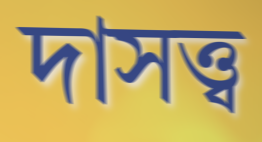
দাসত্ত্ব